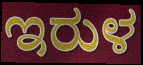
ಇರುಳ